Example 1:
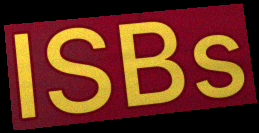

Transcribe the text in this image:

ISBs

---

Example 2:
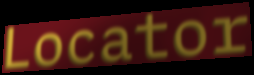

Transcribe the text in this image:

Locator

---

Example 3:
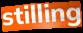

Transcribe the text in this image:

stilling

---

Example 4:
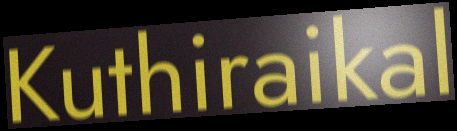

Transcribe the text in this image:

Kuthiraikal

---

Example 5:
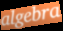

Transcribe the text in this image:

algebra